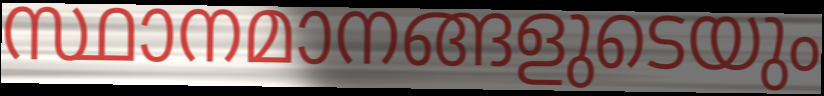
സ്ഥാനമാനങ്ങളുടെയും